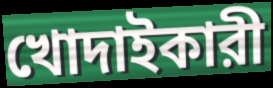
খোদাইকারী